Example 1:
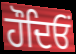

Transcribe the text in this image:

ਹੌਦਿਓਂ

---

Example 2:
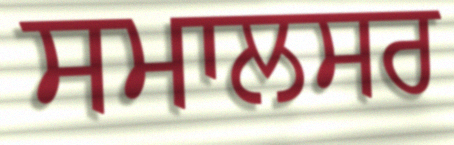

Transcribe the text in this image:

ਸਮਾਲਸਰ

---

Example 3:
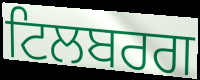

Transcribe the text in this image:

ਟਿਲਬਰਗ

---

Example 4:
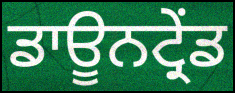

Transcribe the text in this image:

ਡਾਊਨਟ੍ਰੇਂਡ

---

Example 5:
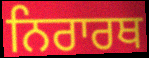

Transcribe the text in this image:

ਨਿਰਾਰਥ